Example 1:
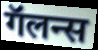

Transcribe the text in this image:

गॅलन्स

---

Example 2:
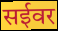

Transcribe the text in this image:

सईवर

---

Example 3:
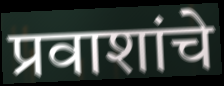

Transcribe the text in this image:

प्रवाशांचे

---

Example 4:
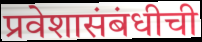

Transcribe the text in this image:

प्रवेशासंबंधीची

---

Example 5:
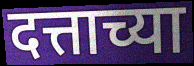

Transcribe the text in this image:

दत्ताच्या